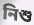
নিশু